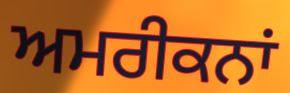
ਅਮਰੀਕਨਾਂ